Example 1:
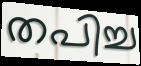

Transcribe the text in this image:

തപിച്ച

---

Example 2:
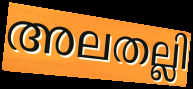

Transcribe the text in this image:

അലതല്ലി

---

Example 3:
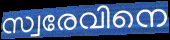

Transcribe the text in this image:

സ്വരേവിനെ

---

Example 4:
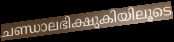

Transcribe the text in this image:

ചണ്ഡാലഭിക്ഷുകിയിലൂടെ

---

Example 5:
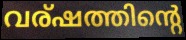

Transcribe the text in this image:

വര്ഷത്തിന്റെ